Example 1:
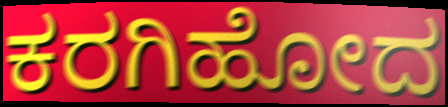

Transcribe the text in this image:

ಕರಗಿಹೋದ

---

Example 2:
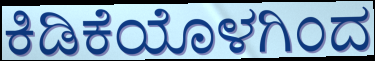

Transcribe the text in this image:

ಕಿಡಿಕೆಯೊಳಗಿಂದ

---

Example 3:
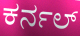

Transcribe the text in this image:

ಕರ್ನಲ್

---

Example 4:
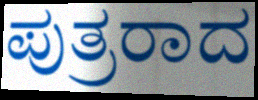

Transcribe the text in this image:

ಪುತ್ರರಾದ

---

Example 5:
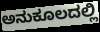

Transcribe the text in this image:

ಅನುಕೂಲದಲ್ಲಿ